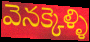
వెనక్కెళ్ళి